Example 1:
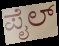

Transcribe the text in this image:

ಪೈಲ್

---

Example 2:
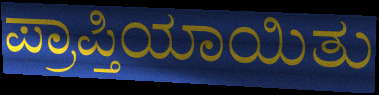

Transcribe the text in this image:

ಪ್ರಾಪ್ತಿಯಾಯಿತು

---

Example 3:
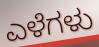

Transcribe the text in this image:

ಎಳೆಗಳು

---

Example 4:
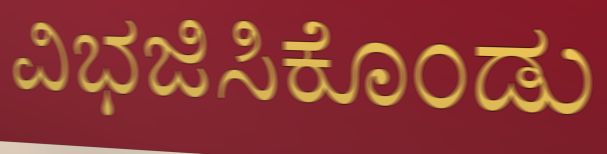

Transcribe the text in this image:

ವಿಭಜಿಸಿಕೊಂಡು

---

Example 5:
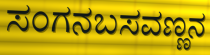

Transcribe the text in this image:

ಸಂಗನಬಸವಣ್ಣನ